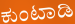
ಕುಂಟಾಡಿ